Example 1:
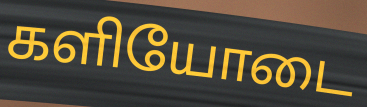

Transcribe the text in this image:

களியோடை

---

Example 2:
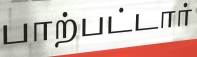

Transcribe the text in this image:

பாற்பட்டார்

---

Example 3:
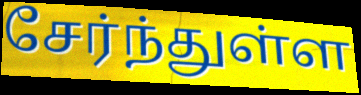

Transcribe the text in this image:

சேர்ந்துள்ள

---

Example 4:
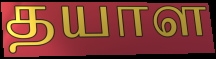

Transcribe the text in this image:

தயாள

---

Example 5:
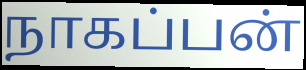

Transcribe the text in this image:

நாகப்பன்